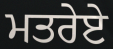
ਮਤਰੇਏ